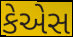
કેએસ